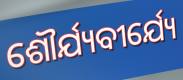
ଶୌର୍ଯ୍ୟବୀର୍ଯ୍ୟେ